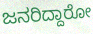
ಜನರಿದ್ದಾರೋ